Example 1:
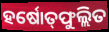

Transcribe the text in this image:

ହର୍ଷୋତ୍‌ଫୁଲ୍ଲିତ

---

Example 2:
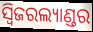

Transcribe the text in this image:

ସ୍ୱିଜରଲ୍ୟାଣ୍ଡର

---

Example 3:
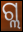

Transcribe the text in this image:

ଗ୍ଲ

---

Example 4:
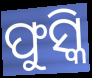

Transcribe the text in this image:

ଫୁସ୍କି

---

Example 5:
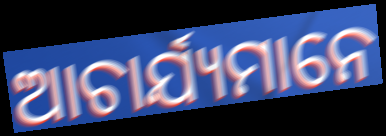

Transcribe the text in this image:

ଆଚାର୍ଯ୍ୟମାନେ